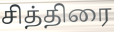
சித்திரை